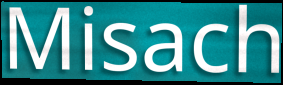
Misach